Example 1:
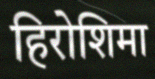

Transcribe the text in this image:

हिरोशिमा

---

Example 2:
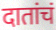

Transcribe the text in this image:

दातांचं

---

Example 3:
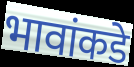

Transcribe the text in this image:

भावांकडे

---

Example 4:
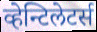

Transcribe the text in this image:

व्हेन्टिलेटर्स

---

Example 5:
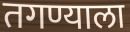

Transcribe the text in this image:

तगण्याला